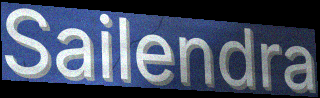
Sailendra